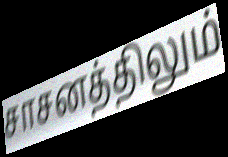
சாசனத்திலும்